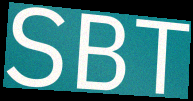
SBT